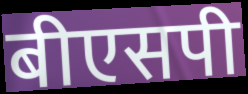
बीएसपी